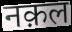
नक़ल